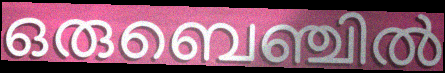
ഒരുബെഞ്ചിൽ